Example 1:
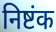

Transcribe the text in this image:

निष्टंक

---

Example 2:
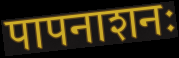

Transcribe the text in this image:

पापनाशनः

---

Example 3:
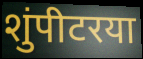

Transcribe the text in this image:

शुंपीटरया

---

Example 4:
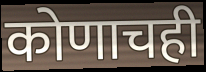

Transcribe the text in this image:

कोणाचही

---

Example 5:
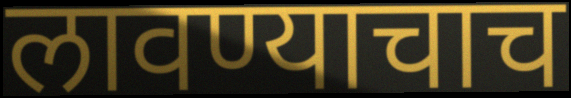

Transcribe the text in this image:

लावण्याचाच